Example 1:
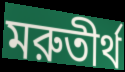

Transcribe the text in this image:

মরুতীর্থ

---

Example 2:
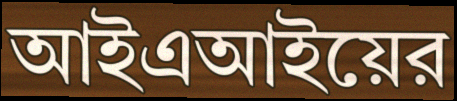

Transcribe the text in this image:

আইএআইয়ের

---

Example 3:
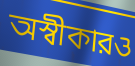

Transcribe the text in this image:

অস্বীকারও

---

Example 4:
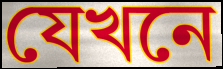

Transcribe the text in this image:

যেখনে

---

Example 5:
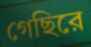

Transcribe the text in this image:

গেছিরে